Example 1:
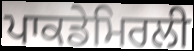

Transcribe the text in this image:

ਪਾਕਡੇਮਿਰਲੀ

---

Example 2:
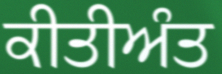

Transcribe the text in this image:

ਕੀਤੀਅੰਤ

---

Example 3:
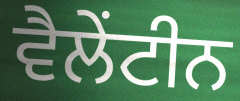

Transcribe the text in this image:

ਵੈਲੇਂਟੀਨ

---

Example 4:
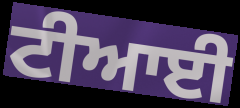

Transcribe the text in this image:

ਟੀਆਈ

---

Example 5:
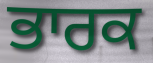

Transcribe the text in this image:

ਭਾਰਕ